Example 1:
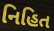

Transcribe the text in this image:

નિહિત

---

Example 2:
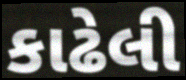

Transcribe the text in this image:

કાઢેલી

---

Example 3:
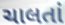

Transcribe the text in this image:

ચાલતાં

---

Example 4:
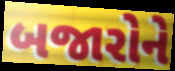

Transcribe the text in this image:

બજારોને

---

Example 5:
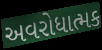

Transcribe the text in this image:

અવરોધાત્મક